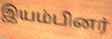
இயம்பினர்